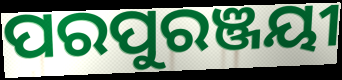
ପରପୁରଞ୍ଜୟୀ